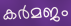
കർമജം